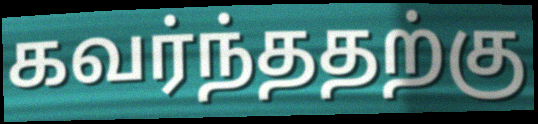
கவர்ந்ததற்கு